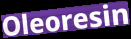
Oleoresin